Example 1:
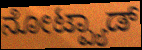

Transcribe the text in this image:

ನೋಟ್ಪ್ಯಾಡ್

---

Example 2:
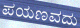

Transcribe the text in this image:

ಪಯಣವದು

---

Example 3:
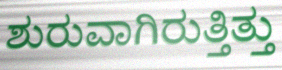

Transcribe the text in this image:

ಶುರುವಾಗಿರುತ್ತಿತ್ತು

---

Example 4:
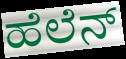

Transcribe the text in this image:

ಹೆಲೆನ್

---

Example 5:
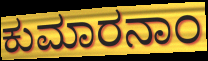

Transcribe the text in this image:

ಕುಮಾರನಾಂ